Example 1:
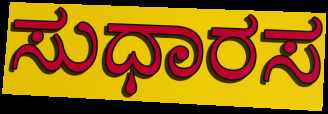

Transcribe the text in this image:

ಸುಧಾರಸ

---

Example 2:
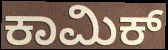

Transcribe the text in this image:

ಕಾಮಿಕ್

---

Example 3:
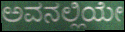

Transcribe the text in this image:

ಅವನಲ್ಲಿಯೇ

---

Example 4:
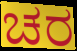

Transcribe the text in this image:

ಚರ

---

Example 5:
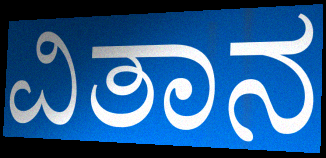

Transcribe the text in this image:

ವಿತಾನ